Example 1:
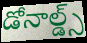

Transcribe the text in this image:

డోనాల్డ్స్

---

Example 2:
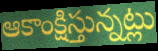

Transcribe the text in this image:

ఆకాంక్షిస్తున్నట్లు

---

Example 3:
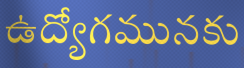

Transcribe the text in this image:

ఉద్యోగమునకు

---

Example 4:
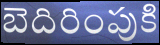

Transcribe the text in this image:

బెదిరింపుకి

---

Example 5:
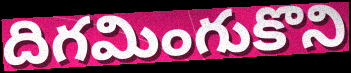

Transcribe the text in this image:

దిగమింగుకొని